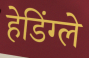
हेडिंग्ले